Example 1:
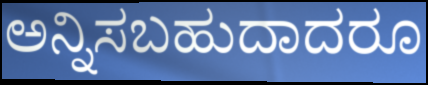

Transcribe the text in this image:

ಅನ್ನಿಸಬಹುದಾದರೂ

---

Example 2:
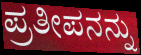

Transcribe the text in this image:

ಪ್ರತೀಪನನ್ನು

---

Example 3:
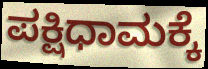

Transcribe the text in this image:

ಪಕ್ಷಿಧಾಮಕ್ಕೆ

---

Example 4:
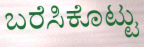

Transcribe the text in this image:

ಬರೆಸಿಕೊಟ್ಟು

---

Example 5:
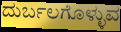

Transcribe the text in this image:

ದುರ್ಬಲಗೊಳ್ಳುವ